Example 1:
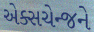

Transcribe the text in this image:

એક્સચેન્જને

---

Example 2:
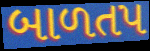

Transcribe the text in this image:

બાળતપ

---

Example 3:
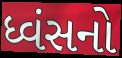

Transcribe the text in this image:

ધ્વંસનો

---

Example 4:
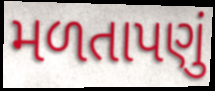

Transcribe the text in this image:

મળતાપણું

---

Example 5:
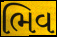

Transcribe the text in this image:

ભિવ